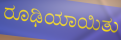
ರೂಢಿಯಾಯಿತು